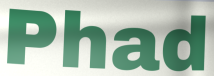
Phad